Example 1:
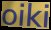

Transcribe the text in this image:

oiki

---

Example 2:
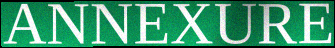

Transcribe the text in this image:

ANNEXURE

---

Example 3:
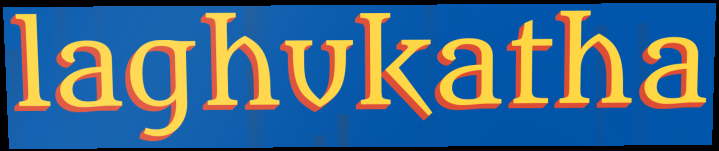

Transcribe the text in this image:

laghukatha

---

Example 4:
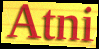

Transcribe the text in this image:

Atni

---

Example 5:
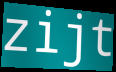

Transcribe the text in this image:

zijt